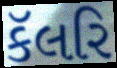
કૅલરિ